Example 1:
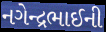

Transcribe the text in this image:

નગેન્દ્રભાઈની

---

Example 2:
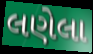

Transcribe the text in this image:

લણેલા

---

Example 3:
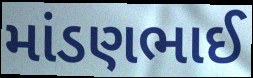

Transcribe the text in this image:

માંડણભાઈ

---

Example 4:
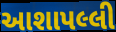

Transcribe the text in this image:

આશાપલ્લી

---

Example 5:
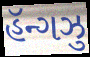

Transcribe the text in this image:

હૅન્ગઝુ